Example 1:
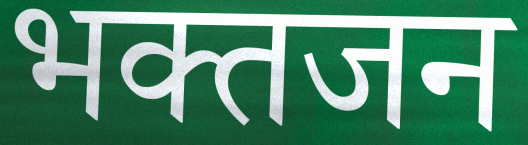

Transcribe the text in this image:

भक्तजन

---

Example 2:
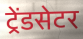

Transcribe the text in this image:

ट्रेंडसेटर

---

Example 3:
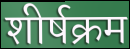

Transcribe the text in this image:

शीर्षक्रम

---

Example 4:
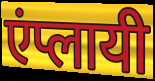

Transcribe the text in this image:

एंप्लायी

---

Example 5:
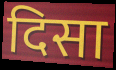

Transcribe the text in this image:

दिसा